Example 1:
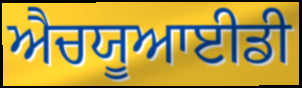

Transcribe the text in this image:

ਐਚਯੂਆਈਡੀ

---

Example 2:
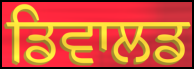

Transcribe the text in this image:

ਡਿਵਾਲਡ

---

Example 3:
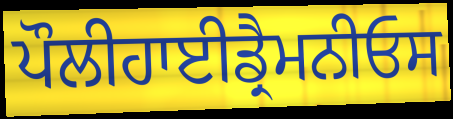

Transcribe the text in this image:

ਪੌਲੀਹਾਈਡ੍ਰੈਮਨੀਓਸ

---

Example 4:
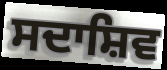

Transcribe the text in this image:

ਸਦਾਸ਼ਿਵ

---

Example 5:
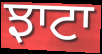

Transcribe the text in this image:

ਝਾਟਾ